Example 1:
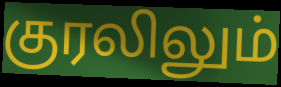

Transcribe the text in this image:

குரலிலும்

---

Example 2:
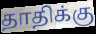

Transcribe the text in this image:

தாதிக்கு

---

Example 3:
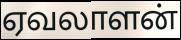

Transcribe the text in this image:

ஏவலாளன்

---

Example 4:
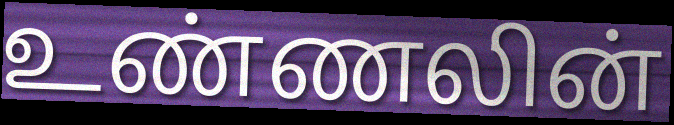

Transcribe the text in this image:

உண்ணலின்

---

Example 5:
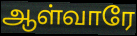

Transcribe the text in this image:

ஆள்வாரே